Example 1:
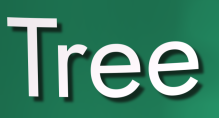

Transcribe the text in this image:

Tree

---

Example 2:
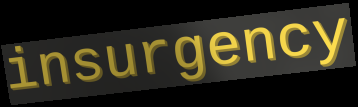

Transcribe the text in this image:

insurgency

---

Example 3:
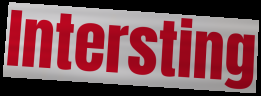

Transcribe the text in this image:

Intersting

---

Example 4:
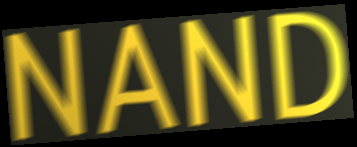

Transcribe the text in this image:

NAND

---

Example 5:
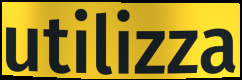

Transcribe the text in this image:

utilizza